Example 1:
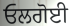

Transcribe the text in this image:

ਓਲਗੋਈ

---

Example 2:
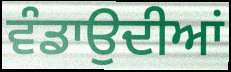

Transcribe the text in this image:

ਵੰਡਾਉਦੀਆਂ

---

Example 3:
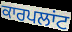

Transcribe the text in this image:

ਕਾਰਪਲਾਂਟ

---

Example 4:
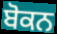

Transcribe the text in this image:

ਬੋਕਨ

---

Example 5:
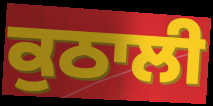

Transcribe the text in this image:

ਕੁਠਾਲੀ